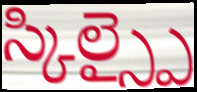
స్కిల్స్పై